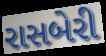
રાસબેરી